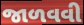
જાળવવી